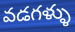
వడగళ్ళు